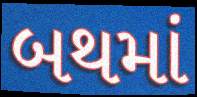
બથમાં